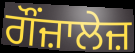
ਗੌਂਜ਼ਾਲੇਜ਼